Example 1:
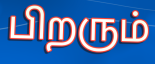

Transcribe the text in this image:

பிறரும்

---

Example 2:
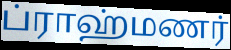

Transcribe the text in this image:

ப்ராஹ்மணர்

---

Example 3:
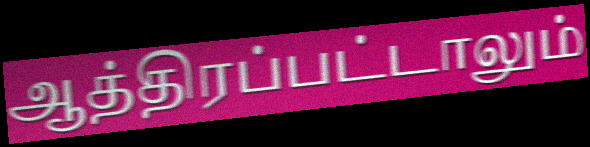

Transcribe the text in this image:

ஆத்திரப்பட்டாலும்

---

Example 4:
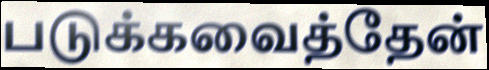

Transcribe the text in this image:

படுக்கவைத்தேன்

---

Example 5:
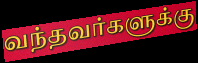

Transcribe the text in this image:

வந்தவர்களுக்கு